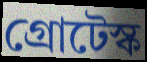
গ্রোটেস্ক